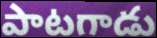
పాటగాడు